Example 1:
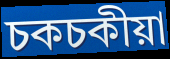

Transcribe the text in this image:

চকচকীয়া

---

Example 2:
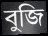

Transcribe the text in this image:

বুজি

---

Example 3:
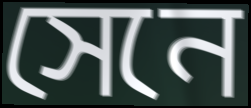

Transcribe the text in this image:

সেনে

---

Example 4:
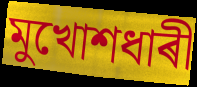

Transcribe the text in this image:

মুখোশধাৰী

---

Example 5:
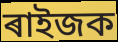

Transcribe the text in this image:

ৰাইজক